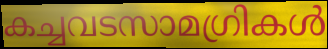
കച്ചവടസാമഗ്രികൾ